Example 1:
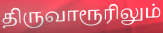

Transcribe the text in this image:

திருவாரூரிலும்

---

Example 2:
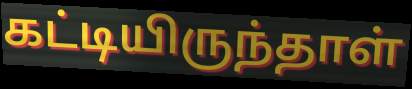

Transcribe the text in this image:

கட்டியிருந்தாள்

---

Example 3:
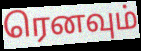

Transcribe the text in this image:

ரெனவும்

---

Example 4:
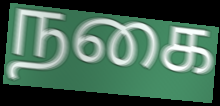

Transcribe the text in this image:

நகை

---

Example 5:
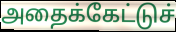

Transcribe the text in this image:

அதைக்கேட்டுச்